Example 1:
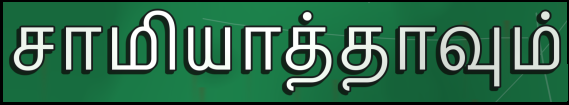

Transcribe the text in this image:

சாமியாத்தாவும்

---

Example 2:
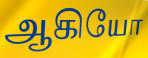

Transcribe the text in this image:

ஆகியோ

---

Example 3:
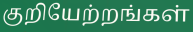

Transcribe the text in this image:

குறியேற்றங்கள்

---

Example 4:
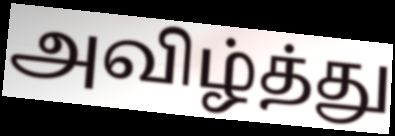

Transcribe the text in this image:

அவிழ்த்து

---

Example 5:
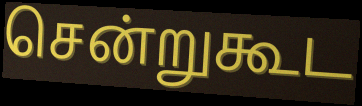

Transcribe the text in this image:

சென்றுகூட